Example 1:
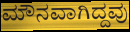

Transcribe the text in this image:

ಮೌನವಾಗಿದ್ದವು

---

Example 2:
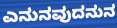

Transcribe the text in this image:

ಎನುನವುದನುನ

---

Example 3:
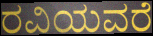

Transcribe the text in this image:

ರವಿಯವರೆ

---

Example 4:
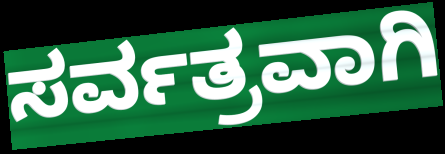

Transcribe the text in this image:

ಸರ್ವತ್ರವಾಗಿ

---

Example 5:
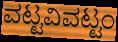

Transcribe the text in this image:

ವಟ್ಟವಿವಟ್ಟಂ